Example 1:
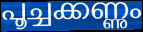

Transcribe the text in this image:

പൂച്ചക്കണ്ണും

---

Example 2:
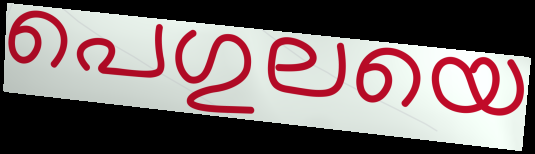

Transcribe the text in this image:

പെഗുലയെ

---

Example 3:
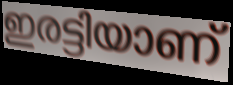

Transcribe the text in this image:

ഇരട്ടിയാണ്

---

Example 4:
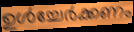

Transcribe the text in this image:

ഉൾച്ചേർക്കണം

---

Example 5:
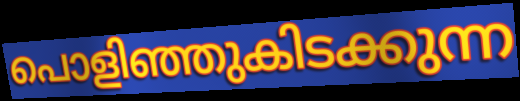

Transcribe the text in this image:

പൊളിഞ്ഞുകിടക്കുന്ന